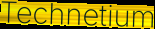
Technetium